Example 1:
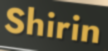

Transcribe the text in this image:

Shirin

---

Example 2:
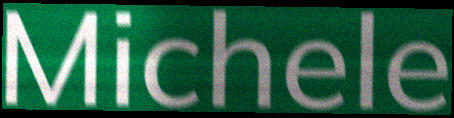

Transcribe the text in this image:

Michele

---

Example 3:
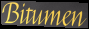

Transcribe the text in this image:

Bitumen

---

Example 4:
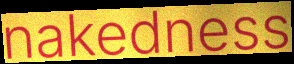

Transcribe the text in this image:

nakedness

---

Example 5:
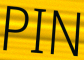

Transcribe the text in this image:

PIN